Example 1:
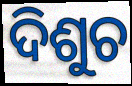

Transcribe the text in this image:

ଦିଶୁଚ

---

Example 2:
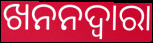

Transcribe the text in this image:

ଖନନଦ୍ୱାରା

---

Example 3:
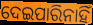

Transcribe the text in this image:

ଦେଇପାରିନାହିଁ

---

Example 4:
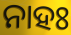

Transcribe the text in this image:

ନାହଃ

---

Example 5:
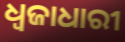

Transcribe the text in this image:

ଧ୍ବଜାଧାରୀ